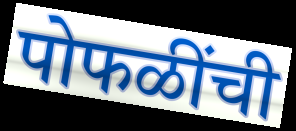
पोफळींची